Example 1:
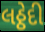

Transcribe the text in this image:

લઠ્ઠેદી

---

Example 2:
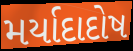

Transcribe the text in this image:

મર્યાદાદોષ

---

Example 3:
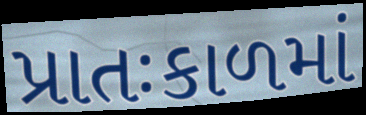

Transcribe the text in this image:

પ્રાતઃકાળમાં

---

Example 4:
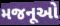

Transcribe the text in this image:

મજનૂઓ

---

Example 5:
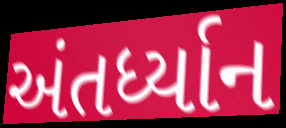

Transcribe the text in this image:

અંતર્ધ્યાન